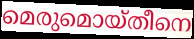
മെരുമൊയ്തീനെ